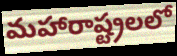
మహారాష్ట్రలలో